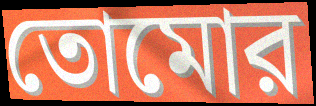
তোমোর